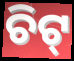
ଚିଟ୍